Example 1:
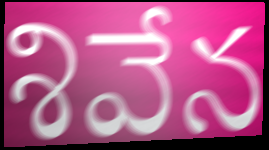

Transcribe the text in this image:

శివేన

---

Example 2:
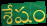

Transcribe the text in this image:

శేషం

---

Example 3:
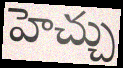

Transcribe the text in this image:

హెచ్చు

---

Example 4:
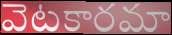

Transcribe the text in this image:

వెటకారమా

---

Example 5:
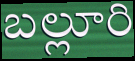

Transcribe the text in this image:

బల్లూరి